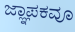
ಜ್ಞಾಪಕವೂ